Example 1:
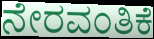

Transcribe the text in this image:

ನೇರವಂತಿಕೆ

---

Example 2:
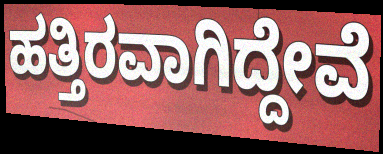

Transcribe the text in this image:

ಹತ್ತಿರವಾಗಿದ್ದೇವೆ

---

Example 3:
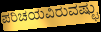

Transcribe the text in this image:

ಪರಿಚಯವಿರುವಷ್ಟು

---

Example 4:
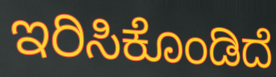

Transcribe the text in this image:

ಇರಿಸಿಕೊಂಡಿದೆ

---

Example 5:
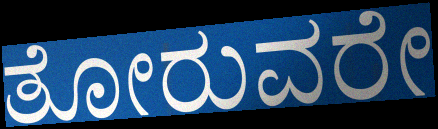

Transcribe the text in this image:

ತೋರುವರೇ